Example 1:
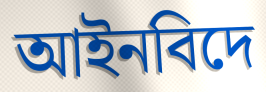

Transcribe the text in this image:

আইনবিদে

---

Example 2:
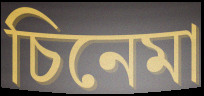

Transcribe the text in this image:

চিনেমা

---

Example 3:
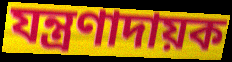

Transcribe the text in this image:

যন্ত্ৰণাদায়ক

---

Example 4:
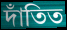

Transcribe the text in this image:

দাঁতিত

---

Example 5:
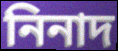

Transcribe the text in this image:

নিনাদ